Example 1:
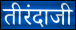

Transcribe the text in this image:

तीरंदाजी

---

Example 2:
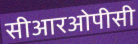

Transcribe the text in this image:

सीआरओपीसी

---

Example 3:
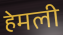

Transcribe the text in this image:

हेमली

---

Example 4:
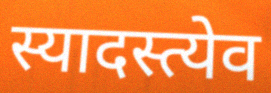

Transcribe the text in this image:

स्यादस्त्येव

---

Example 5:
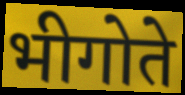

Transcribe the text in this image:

भीगोते